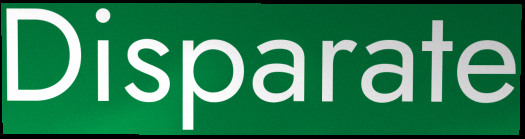
Disparate